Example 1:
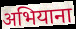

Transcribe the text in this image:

अभियाना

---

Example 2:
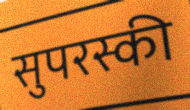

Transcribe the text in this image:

सुपरस्की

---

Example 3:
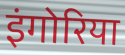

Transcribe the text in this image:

इंगोरिया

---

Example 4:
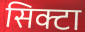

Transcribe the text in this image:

सिक्टा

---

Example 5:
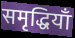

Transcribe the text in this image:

समृद्धियाँ